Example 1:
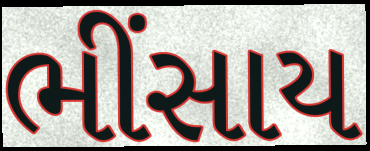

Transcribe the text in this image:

ભીંસાય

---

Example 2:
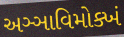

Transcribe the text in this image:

અઞ્ઞાવિમોક્ખં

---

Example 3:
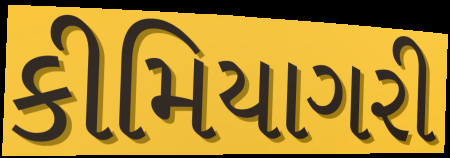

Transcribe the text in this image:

કીમિયાગરી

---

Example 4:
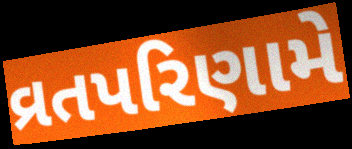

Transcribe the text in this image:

વ્રતપરિણામે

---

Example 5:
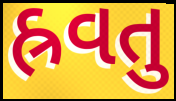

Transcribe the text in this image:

હ્રવતુ